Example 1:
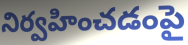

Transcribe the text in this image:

నిర్వహించడంపై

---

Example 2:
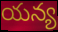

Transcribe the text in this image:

యన్య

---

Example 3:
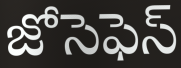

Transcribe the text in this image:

జోసెఫెస్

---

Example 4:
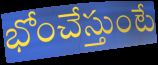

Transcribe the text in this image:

భోంచేస్తుంటే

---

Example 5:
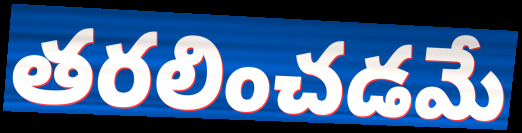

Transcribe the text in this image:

తరలించడమే